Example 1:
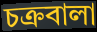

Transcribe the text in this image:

চক্রবালা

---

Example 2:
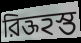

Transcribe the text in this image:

রিক্তহস্ত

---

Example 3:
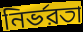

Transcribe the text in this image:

নির্ভরতা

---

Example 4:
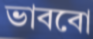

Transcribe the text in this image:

ভাববো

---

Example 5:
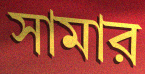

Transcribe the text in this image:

সামার